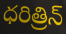
ధరిత్రిన్